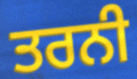
ਤਰਨੀ